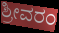
ಶ್ರೀವರಂ